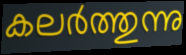
കലർത്തുന്നു